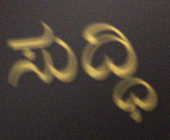
ಸುದ್ಧಿ